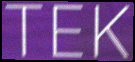
TEK